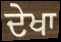
ਦੇਖਾ